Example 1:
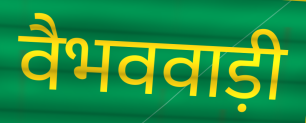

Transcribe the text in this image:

वैभववाड़ी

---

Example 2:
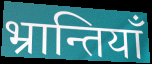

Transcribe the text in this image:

भ्रान्तियाँ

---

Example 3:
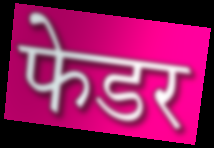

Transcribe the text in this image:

फेडर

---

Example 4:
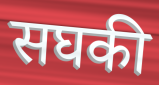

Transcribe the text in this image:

सघकी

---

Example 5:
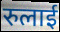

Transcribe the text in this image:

रुलाई